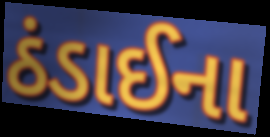
ઠંડાઈના